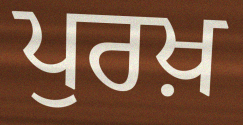
ਪੁਰਖ਼